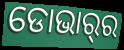
ଡୋଭାର୍‌ର